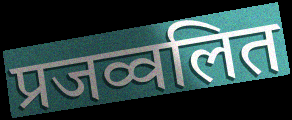
प्रजव्वलित